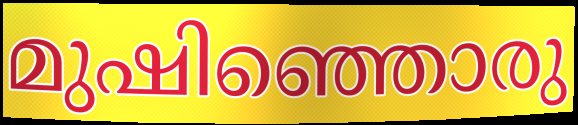
മുഷിഞ്ഞൊരു